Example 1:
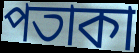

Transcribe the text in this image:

পতাকা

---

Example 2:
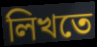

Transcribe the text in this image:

লিখতে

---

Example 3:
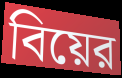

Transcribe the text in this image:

বিয়ের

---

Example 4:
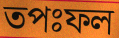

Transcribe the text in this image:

তপঃফল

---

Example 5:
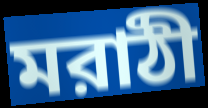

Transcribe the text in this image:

মরাঠী